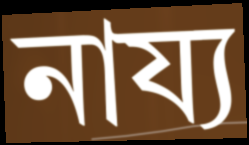
নায্য